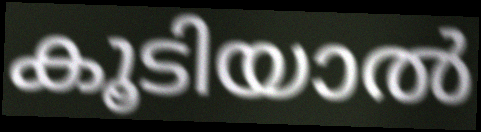
കൂടിയാൽ